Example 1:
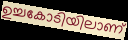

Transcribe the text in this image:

ഉച്ചകോടിയിലാണ്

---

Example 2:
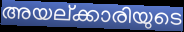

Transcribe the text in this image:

അയല്ക്കാരിയുടെ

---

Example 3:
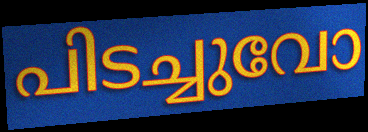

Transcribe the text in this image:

പിടച്ചുവോ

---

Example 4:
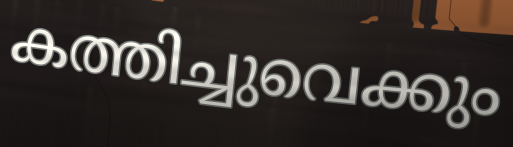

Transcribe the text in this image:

കത്തിച്ചുവെക്കും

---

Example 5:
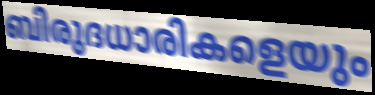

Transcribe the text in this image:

ബിരുദധാരികളെയും